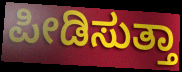
ಪೀಡಿಸುತ್ತಾ